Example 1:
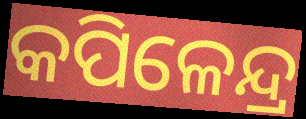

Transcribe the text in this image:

କପିଳେନ୍ଦ୍ର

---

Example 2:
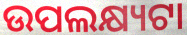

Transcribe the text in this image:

ଉପଲକ୍ଷ୍ୟଟା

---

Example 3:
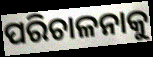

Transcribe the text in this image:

ପରିଚାଳନାକୁ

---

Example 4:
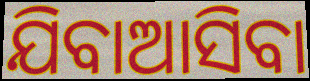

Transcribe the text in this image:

ଯିବାଆସିବା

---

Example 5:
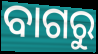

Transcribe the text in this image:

ବାଗରୁ